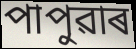
পাপুৱাৰ